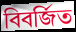
বিবর্জিত